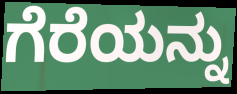
ಗೆರೆಯನ್ನು